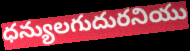
ధన్యులగుదురనియు